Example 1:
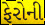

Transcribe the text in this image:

ફેરોની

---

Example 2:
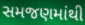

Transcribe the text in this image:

સમજણમાંથી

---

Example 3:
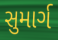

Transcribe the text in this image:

સુમાર્ગ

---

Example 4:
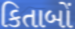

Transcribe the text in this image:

કિતાબોં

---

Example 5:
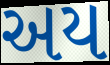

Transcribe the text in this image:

અય